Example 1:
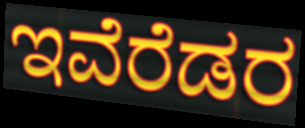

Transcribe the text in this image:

ಇವೆರೆಡರ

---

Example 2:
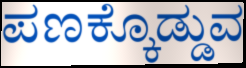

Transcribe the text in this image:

ಪಣಕ್ಕೊಡ್ಡುವ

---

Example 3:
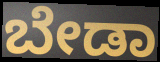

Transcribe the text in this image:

ಬೇಡಾ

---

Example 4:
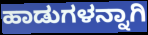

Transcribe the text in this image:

ಹಾಡುಗಳನ್ನಾಗಿ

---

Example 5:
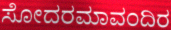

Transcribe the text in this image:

ಸೋದರಮಾವಂದಿರ